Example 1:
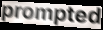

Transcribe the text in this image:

prompted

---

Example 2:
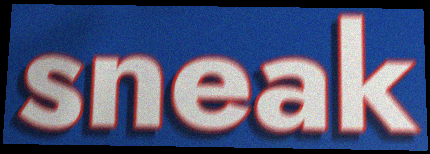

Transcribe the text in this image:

sneak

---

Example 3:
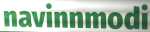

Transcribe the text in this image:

navinnmodi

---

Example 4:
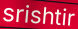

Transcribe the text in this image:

srishtir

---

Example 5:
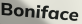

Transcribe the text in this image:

Boniface